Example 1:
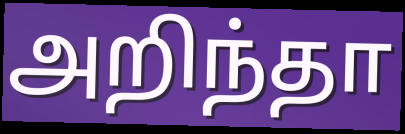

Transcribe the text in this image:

அறிந்தா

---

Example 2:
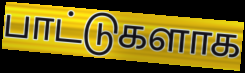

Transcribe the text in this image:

பாட்டுகளாக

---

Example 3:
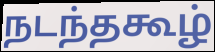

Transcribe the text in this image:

நடந்தகூழ்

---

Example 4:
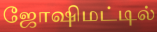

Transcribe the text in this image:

ஜோஷிமட்டில்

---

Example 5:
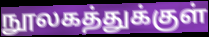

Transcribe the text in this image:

நூலகத்துக்குள்